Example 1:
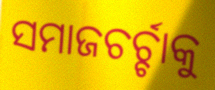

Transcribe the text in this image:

ସମାଜଚର୍ଚ୍ଚାକୁ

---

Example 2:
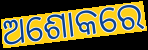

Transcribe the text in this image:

ଅଶୋକରେ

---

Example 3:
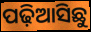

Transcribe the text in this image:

ପଢ଼ିଆସିଛୁ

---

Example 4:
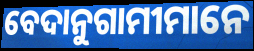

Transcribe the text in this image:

ବେଦାନୁଗାମୀମାନେ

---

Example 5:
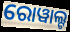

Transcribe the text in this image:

ରୋୱାଲ୍ଟ